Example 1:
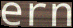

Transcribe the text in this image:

ern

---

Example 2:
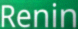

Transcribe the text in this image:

Renin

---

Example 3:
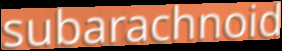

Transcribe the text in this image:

subarachnoid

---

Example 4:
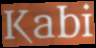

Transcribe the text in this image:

Kabi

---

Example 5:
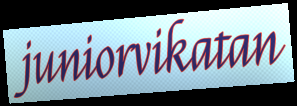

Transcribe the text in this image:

juniorvikatan